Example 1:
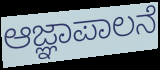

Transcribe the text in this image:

ಆಜ್ಞಾಪಾಲನೆ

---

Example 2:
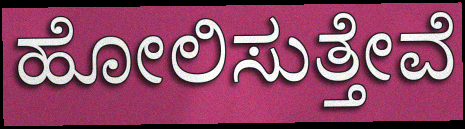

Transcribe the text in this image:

ಹೋಲಿಸುತ್ತೇವೆ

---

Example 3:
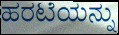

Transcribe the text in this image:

ಹರಟೆಯನ್ನು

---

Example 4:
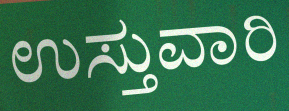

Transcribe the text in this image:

ಉಸ್ತುವಾರಿ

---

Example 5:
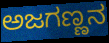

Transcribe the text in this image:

ಅಜಗಣ್ಣನ